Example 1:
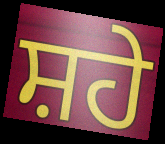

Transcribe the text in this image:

ਸ਼ਹੇ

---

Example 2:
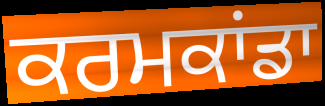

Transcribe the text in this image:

ਕਰਮਕਾਂਡਾ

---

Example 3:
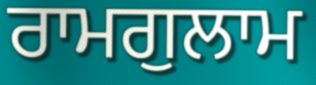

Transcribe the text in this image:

ਰਾਮਗੁਲਾਮ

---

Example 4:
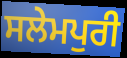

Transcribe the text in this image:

ਸਲੇਮਪੁਰੀ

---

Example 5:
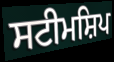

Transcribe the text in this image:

ਸਟੀਮਸ਼ਿਪ